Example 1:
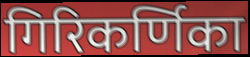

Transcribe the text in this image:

गिरिकर्णिका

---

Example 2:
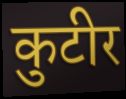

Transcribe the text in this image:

कुटीर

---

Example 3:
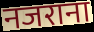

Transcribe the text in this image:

नजराना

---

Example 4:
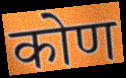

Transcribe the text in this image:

कोण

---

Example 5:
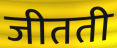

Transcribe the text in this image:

जीतती